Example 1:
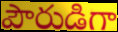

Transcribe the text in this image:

పౌరుడిగా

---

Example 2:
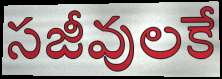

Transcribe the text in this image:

సజీవులకే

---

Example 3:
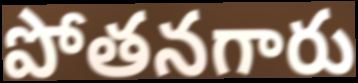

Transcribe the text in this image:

పోతనగారు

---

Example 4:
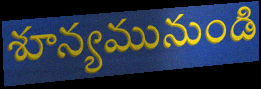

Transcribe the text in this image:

శూన్యమునుండి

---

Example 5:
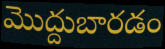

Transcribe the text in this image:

మొద్దుబారడం